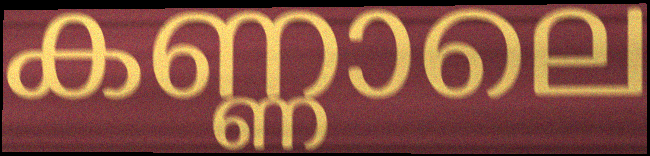
കണ്ണാലെ